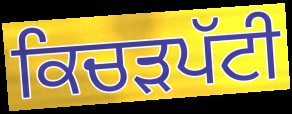
ਕਿਚੜਪੱਟੀ